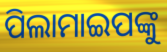
ପିଲାମାଇପଙ୍କୁ